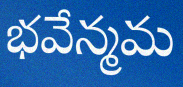
భవేన్మమ